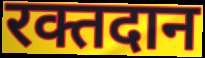
रक्तदान